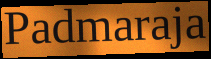
Padmaraja